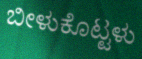
ಬೀಳುಕೊಟ್ಟಳು